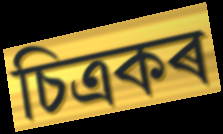
চিত্ৰকৰ